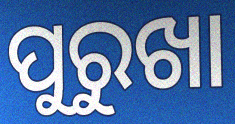
ପୁରୁଖା